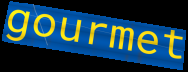
gourmet